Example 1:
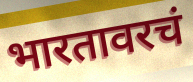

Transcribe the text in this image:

भारतावरचं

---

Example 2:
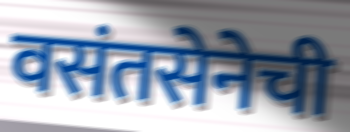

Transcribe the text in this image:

वसंतसेनेची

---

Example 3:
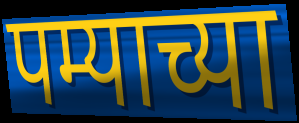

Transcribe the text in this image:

पम्याच्या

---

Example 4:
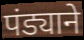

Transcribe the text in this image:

पंड्याने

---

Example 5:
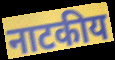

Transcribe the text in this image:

नाटकीय